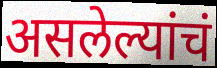
असलेल्यांचं